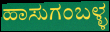
ಹಾಸುಗಂಬಳ್ಳ